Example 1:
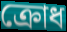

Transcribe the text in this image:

ক্রোধ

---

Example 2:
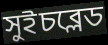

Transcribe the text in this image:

সুইচব্লেড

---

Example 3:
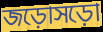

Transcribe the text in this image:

জড়োসড়ো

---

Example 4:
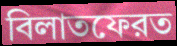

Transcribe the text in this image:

বিলাতফেরত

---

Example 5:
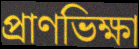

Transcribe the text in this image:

প্রাণভিক্ষা